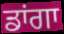
ਡਾਂਗਾ